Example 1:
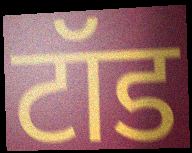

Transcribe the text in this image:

टॉड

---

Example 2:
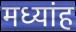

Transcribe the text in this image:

मध्यांह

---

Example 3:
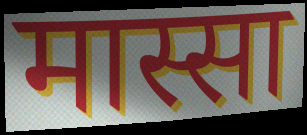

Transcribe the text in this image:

मास्सा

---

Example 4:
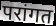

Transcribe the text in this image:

परांगत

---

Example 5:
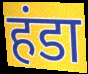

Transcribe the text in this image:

हंडा